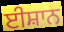
ਈਸ਼ਾਨ